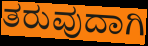
ತರುವುದಾಗಿ